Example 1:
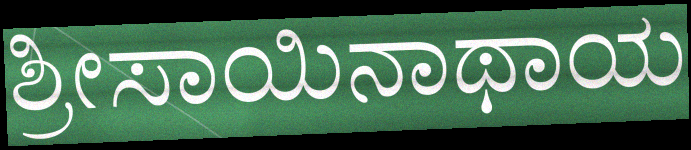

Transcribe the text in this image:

ಶ್ರೀಸಾಯಿನಾಥಾಯ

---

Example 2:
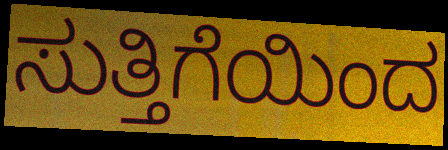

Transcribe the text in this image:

ಸುತ್ತಿಗೆಯಿಂದ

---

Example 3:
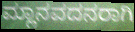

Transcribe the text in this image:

ಮ್ಲಾನವದನರಾಗಿ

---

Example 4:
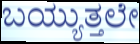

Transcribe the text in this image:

ಬಯ್ಯುತ್ತಲೇ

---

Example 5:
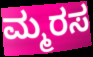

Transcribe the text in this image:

ಮ್ಮರಸ